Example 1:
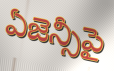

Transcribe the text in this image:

ఏజెన్సీపై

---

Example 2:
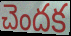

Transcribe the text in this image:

చెందక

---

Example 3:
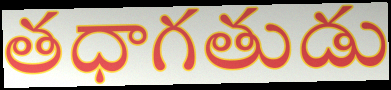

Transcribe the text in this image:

తధాగతుడు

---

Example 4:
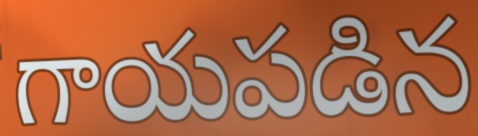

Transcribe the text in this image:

గాయపడిన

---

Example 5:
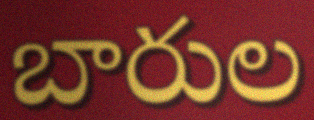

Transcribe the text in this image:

బారుల